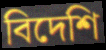
বিদেশি